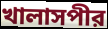
খালাসপীর